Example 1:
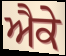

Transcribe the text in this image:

ਐਕੇ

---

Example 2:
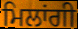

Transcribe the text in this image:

ਮਿਲਾਂਗੀ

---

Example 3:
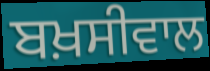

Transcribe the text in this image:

ਬਖ਼ਸੀਵਾਲ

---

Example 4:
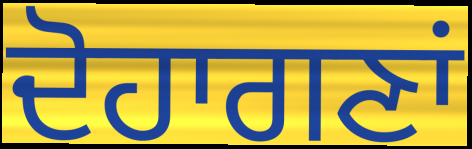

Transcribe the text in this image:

ਦੋਹਾਗਣਾਂ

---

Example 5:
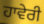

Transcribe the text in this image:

ਹਾਵੇਰੀ